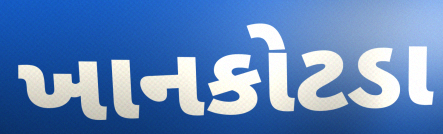
ખાનકોટડા